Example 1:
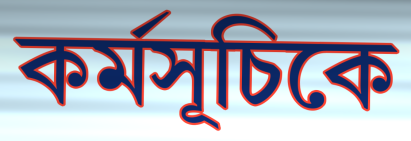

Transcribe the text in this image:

কর্মসূচিকে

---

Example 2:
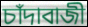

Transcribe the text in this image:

চাঁদাবাজী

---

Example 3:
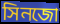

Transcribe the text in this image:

সিনজো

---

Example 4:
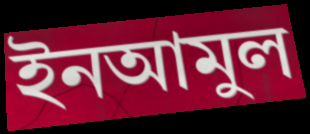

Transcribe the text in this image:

ইনআমুল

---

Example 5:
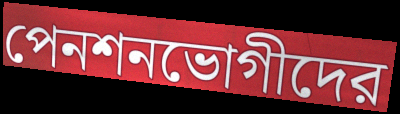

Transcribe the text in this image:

পেনশনভোগীদের